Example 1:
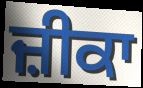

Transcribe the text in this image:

ਜ਼ੀਕਾ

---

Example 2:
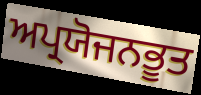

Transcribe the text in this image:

ਅਪ੍ਰਯੋਜਨਭੂਤ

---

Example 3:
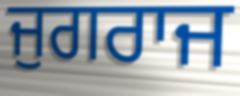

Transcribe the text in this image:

ਜੁਗਰਾਜ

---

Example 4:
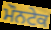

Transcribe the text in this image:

ਮੌਨਟੇਕ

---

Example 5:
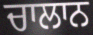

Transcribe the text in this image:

ਚਾਲਾਨ